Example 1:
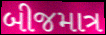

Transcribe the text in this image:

બીજમાત્ર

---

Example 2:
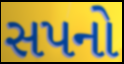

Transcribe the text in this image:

સપનો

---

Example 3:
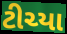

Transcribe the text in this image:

ટીચ્યા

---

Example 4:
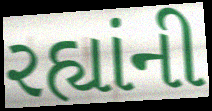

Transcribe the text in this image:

રહ્યાંની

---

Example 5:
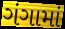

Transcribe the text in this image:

ગંગામાં